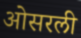
ओसरली